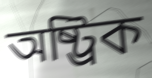
অষ্ট্রিক